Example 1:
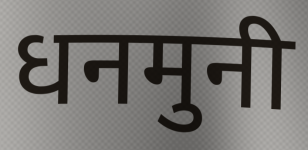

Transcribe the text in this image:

धनमुनी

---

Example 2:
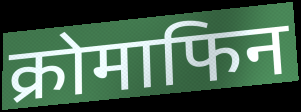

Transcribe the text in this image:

क्रोमाफिन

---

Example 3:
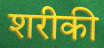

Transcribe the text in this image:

शरीकी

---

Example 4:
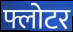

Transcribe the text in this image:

फ्लोटर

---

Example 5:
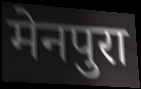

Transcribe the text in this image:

मेनपुरा